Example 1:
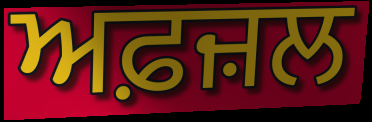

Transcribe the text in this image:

ਅਫ਼ਜ਼ਲ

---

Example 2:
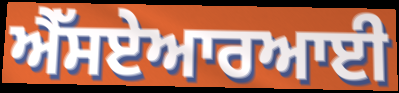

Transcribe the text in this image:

ਐੱਸਏਆਰਆਈ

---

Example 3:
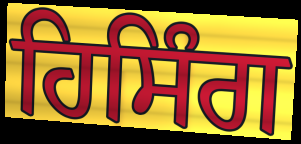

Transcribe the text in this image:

ਹਿਸਿੰਗ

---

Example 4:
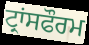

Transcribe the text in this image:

ਟ੍ਰਾਂਸਫੌਰਮ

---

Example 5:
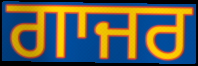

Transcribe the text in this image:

ਗਾਜਰ